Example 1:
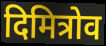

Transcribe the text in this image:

दिमित्रोव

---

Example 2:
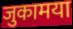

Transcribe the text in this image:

जुकामया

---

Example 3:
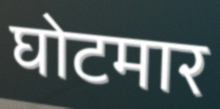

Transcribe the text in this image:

घोटमार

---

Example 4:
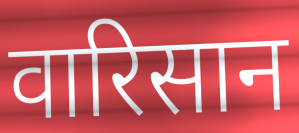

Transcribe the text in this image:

वारिसान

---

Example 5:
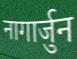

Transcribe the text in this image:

नागार्जुन